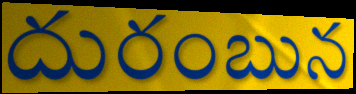
దురంబున